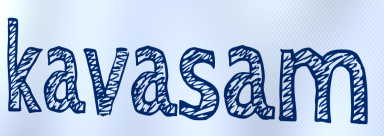
kavasam